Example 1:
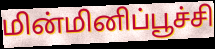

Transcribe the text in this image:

மின்மினிப்பூச்சி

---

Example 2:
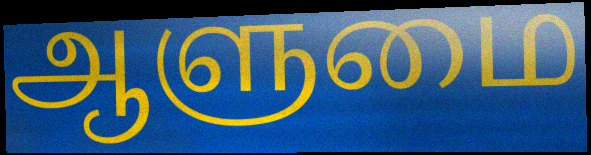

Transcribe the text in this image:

ஆளுமை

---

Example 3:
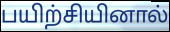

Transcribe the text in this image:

பயிற்சியினால்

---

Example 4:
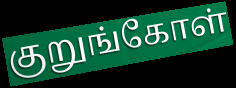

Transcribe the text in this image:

குறுங்கோள்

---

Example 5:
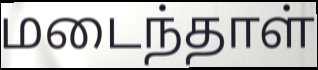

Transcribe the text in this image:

மடைந்தாள்